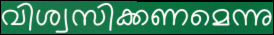
വിശ്വസിക്കണമെന്നു